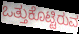
ಒತ್ತುಕೊಟ್ಟಿರುವ